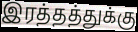
இரத்தத்துக்கு